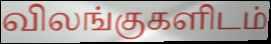
விலங்குகளிடம்